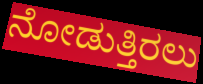
ನೋಡುತ್ತಿರಲು